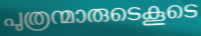
പുത്രന്മാരുടെകൂടെ